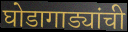
घोडागाड्यांची